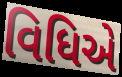
વિધિએ